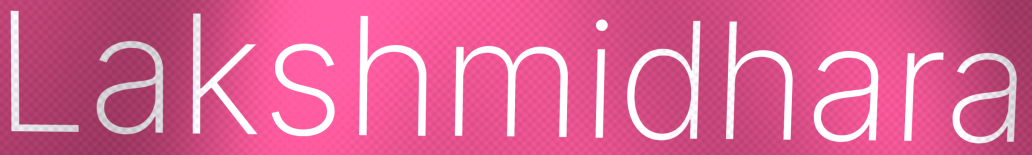
Lakshmidhara